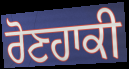
ਰੋਣਹਾਕੀ